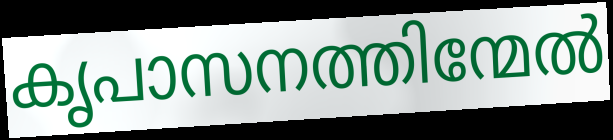
കൃപാസനത്തിന്മേൽ